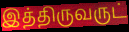
இத்திருவருட்